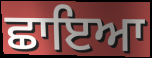
ਛਾਇਆ